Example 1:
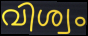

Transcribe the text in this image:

വിശ്വം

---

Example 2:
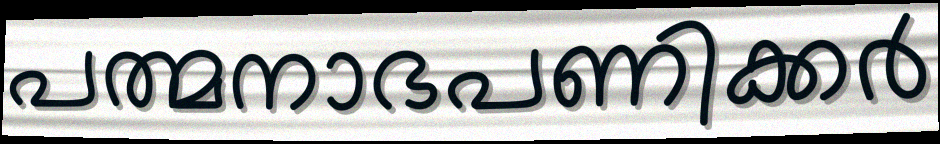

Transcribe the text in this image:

പത്മനാഭപണിക്കർ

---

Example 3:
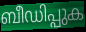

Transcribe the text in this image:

ബീഡിപ്പുക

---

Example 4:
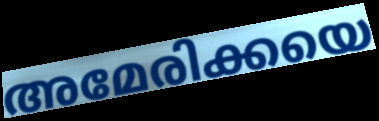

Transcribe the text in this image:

അമേരിക്കയെ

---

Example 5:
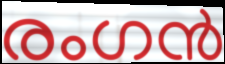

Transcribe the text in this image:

രംഗൻ